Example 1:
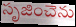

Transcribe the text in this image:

సృజించెను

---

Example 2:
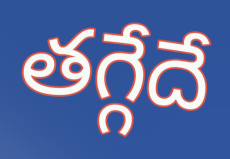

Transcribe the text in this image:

తగ్గేదే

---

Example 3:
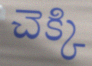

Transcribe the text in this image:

చెక్కి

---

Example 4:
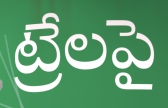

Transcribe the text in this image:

ట్రేలపై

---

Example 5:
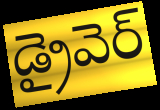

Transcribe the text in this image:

డ్రైవెర్